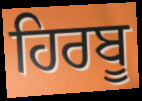
ਹਿਰਬੂ